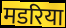
मडरिया